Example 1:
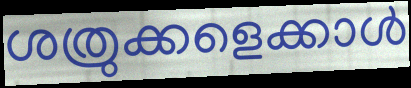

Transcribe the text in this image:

ശത്രുക്കളെക്കാൾ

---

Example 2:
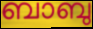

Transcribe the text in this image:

ബാബു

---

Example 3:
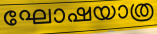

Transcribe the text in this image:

ഘോഷയാത്ര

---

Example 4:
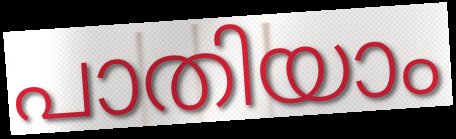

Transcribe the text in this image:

പാതിയാം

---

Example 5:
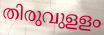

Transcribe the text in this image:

തിരുവുളളം